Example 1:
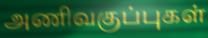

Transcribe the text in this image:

அணிவகுப்புகள்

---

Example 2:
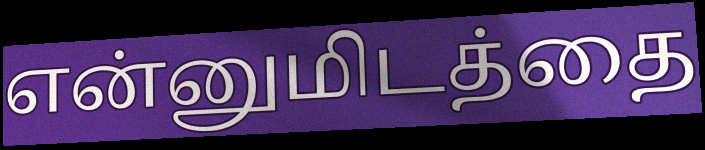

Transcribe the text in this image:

என்னுமிடத்தை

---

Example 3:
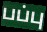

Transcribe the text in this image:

பப்பு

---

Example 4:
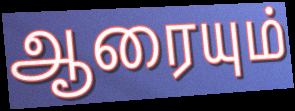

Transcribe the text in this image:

ஆரையும்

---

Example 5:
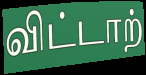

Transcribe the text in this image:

விட்டாற்